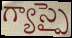
గ్యాస్పై